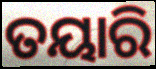
ତୟାରି